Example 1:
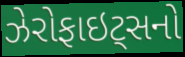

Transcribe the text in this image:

ઝેરોફાઇટ્સનો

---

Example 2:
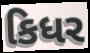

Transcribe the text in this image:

કિધર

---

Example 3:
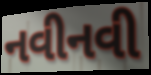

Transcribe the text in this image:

નવીનવી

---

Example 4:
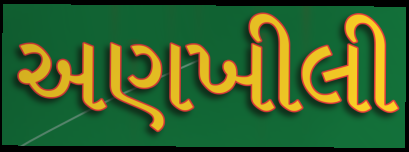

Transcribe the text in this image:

અણખીલી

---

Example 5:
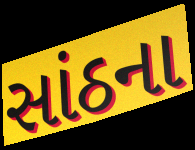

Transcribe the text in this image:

સાંઠના